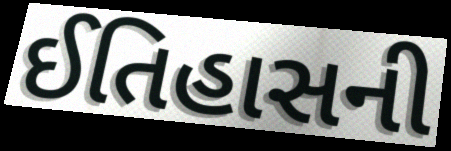
ઈતિહાસની